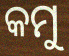
କମୁ